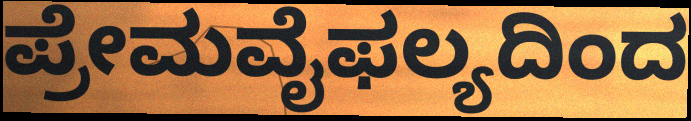
ಪ್ರೇಮವೈಫಲ್ಯದಿಂದ